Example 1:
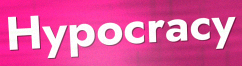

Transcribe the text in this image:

Hypocracy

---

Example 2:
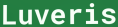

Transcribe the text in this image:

Luveris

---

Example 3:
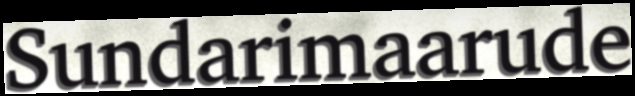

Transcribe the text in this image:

Sundarimaarude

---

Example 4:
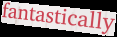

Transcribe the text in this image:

fantastically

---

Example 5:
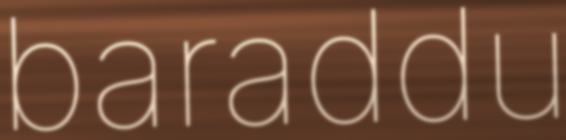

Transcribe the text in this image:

baraddu